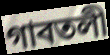
গাবতলী